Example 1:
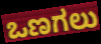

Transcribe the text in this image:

ಒಣಗಲು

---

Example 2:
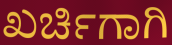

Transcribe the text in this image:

ಖರ್ಚಿಗಾಗಿ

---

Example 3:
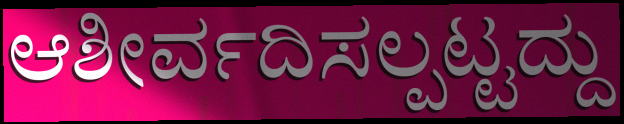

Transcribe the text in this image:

ಆಶೀರ್ವದಿಸಲ್ಪಟ್ಟದ್ದು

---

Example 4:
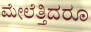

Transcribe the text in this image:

ಮೇಲೆತ್ತಿದರೂ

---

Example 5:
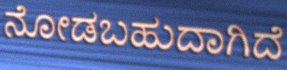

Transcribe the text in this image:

ನೋಡಬಹುದಾಗಿದೆ